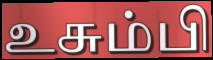
உசும்பி